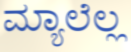
ಮ್ಯಾಲೆಲ್ಲ